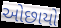
ઓછાયો